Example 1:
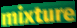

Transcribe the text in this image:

mixture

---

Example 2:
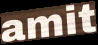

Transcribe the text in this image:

amit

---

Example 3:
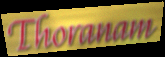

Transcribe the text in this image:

Thoranam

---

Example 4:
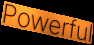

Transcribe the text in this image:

Powerful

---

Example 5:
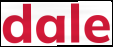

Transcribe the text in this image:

dale